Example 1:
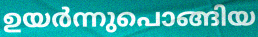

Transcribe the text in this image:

ഉയർന്നുപൊങ്ങിയ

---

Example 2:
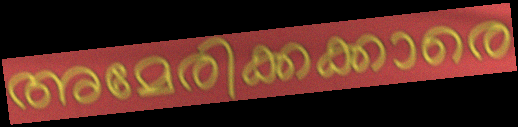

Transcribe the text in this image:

അമേരിക്കക്കാരെ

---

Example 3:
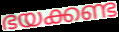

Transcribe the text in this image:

ഭയക്കണ്ട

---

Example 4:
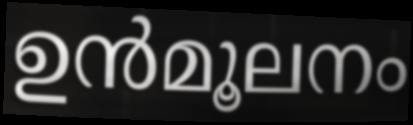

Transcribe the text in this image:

ഉൻമൂലനം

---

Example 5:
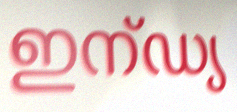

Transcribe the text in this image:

ഇന്ഡ്യ